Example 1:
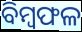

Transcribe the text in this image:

ବିମ୍ୱଫଳ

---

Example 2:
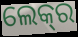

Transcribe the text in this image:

ଲେକ୍‍ର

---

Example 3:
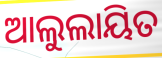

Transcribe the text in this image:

ଆଲୁଲାୟିତ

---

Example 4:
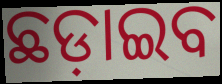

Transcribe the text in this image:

ଛଡ଼ାଇବ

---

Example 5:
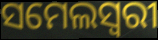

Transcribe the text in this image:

ସମେଲସ୍ୱରୀ